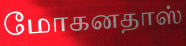
மோகனதாஸ்